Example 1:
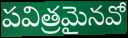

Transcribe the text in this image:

పవిత్రమైనవో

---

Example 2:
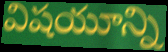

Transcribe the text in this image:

విషయూన్ని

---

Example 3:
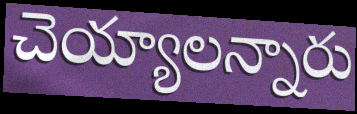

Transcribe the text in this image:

చెయ్యాలన్నారు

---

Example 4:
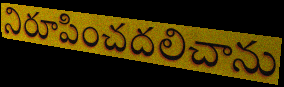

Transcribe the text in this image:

నిరూపించదలిచాను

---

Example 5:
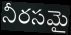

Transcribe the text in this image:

నీరసమై